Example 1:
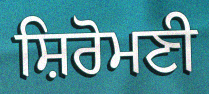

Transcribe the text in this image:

ਸ਼ਿਰੋਮਣੀ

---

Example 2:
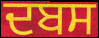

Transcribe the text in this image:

ਦਬਸ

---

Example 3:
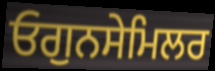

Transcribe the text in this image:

ਓਗੁਨਸੇਮਿਲਰ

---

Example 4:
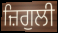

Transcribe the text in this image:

ਜ਼ਿਗੁਲੀ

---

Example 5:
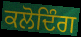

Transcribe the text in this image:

ਕਲੋਦਿੰਗ